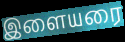
இளையரை